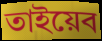
তাইয়েব